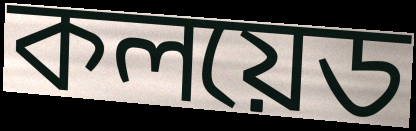
কলয়েড